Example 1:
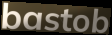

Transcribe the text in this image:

bastob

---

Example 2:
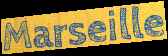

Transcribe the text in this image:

Marseille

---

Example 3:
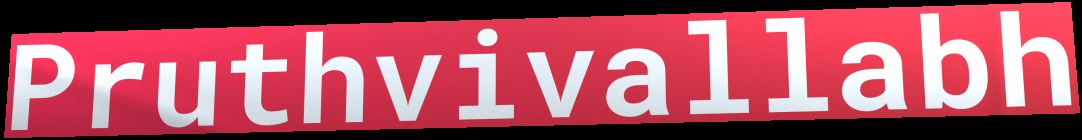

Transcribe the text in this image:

Pruthvivallabh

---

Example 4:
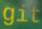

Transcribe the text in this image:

git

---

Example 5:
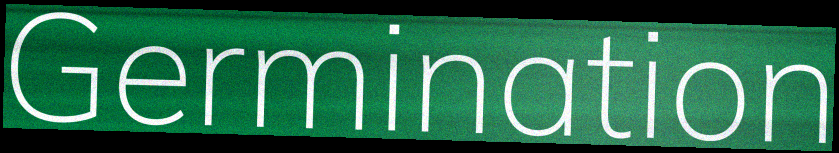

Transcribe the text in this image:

Germination